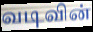
வடிவின்